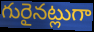
గురైనట్లుగా